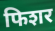
फिशर